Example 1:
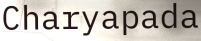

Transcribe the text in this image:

Charyapada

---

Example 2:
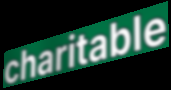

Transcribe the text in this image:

charitable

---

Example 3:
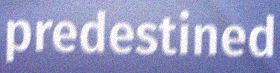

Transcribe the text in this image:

predestined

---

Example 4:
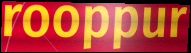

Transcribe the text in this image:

rooppur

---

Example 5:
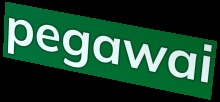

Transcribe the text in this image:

pegawai